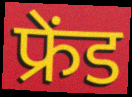
फ्रेंड